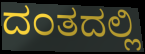
ದಂತದಲ್ಲಿ